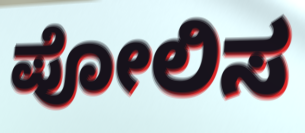
ಪೋಲಿಸ